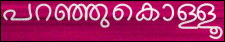
പറഞ്ഞുകൊള്ളൂ